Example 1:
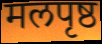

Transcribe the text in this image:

मलपृष्ठ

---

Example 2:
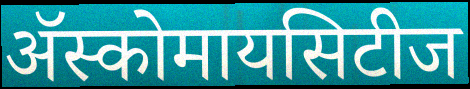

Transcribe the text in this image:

ॲस्कोमायसिटीज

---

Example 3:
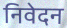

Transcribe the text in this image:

निवेदन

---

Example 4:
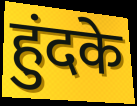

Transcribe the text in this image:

हुंदके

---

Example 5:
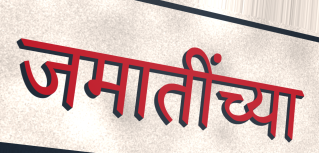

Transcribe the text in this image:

जमातींच्या